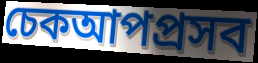
চেকআপপ্রসব